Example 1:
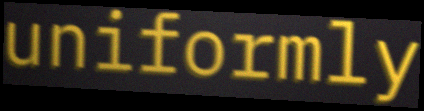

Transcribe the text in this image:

uniformly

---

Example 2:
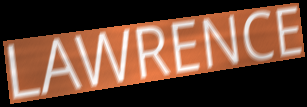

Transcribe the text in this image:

LAWRENCE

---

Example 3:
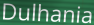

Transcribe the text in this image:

Dulhania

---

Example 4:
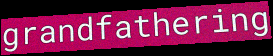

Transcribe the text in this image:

grandfathering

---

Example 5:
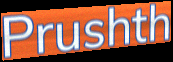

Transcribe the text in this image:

Prushth